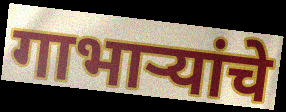
गाभाऱ्यांचे